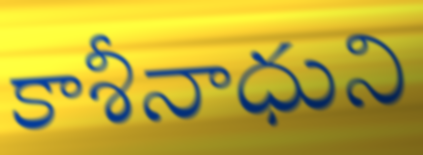
కాశీనాధుని